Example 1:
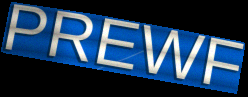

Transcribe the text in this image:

PREWF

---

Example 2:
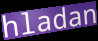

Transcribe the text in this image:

hladan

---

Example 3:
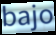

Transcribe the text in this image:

bajo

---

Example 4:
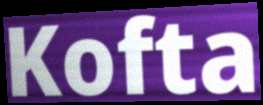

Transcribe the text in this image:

Kofta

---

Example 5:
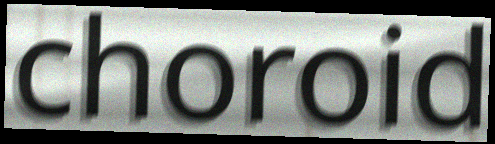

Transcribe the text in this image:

choroid